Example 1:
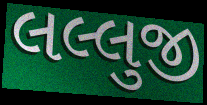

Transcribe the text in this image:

લલ્લુજી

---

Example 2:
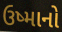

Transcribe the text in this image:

ઉષ્માનો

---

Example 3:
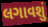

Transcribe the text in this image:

લગાવશું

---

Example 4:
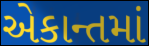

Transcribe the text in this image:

એકાન્તમાં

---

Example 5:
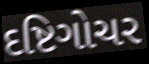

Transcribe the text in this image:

દષ્ટિગોચર